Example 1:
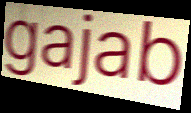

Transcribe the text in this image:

gajab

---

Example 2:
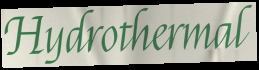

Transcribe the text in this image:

Hydrothermal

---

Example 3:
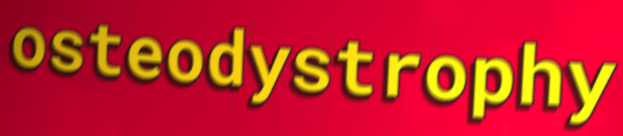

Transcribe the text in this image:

osteodystrophy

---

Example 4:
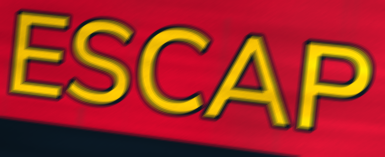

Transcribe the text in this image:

ESCAP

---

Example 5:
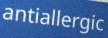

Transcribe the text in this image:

antiallergic